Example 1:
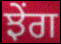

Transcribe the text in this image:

ਝੇਂਗ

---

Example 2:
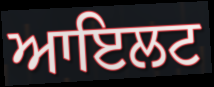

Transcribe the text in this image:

ਆਇਲਟ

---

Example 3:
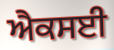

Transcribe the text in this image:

ਐਕਸਈ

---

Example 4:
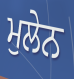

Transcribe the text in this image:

ਮੁਲੇਨ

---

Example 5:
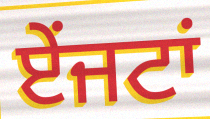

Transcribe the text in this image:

ਏਂਜਟਾਂ